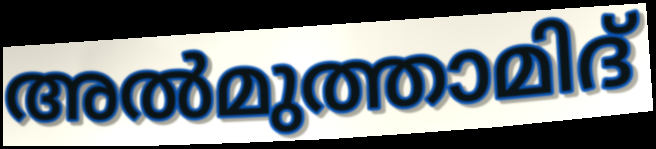
അൽമുത്താമിദ്